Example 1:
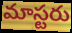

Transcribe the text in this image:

మాస్టరు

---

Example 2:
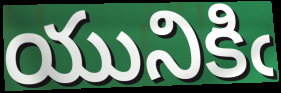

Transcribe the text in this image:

యునికిఁ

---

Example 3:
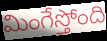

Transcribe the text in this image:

మింగేస్తోంది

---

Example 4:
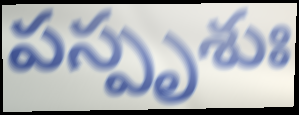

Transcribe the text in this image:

పస్పృశుః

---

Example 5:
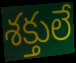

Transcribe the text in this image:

శక్తులే